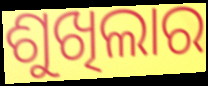
ଶୁଖିଲାର